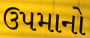
ઉપમાનો